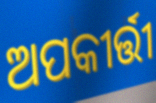
ଅପକୀର୍ତ୍ତୀ